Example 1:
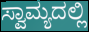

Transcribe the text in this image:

ಸ್ವಾಮ್ಯದಲ್ಲಿ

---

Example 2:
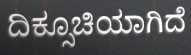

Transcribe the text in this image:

ದಿಕ್ಸೂಚಿಯಾಗಿದೆ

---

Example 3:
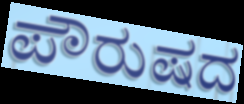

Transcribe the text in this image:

ಪೌರುಷದ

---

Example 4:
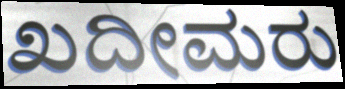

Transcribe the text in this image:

ಖದೀಮರು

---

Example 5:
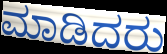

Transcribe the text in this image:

ಮಾಡಿದರು